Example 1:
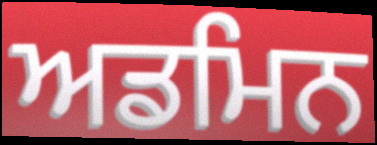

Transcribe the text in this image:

ਅਡਮਿਨ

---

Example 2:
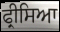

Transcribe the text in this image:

ਫ੍ਰੀਸਿਆ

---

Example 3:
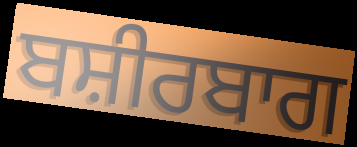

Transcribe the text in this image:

ਬਸ਼ੀਰਬਾਗ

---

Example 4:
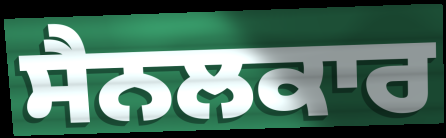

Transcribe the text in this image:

ਸੈਨਲਕਾਰ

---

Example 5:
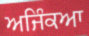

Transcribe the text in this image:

ਅਜਿੰਕਆ